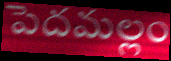
పెదమల్లం